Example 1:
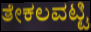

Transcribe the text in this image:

ತೇಕಲವಟ್ಟಿ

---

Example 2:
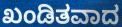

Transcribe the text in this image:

ಖಂಡಿತವಾದ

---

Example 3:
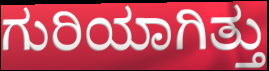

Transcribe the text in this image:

ಗುರಿಯಾಗಿತ್ತು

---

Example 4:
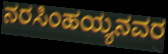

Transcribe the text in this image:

ನರಸಿಂಹಯ್ಯನವರ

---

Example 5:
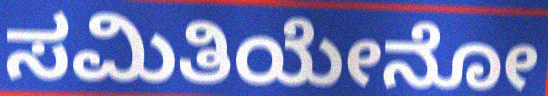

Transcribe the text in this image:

ಸಮಿತಿಯೇನೋ